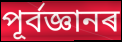
পূৰ্বজ্ঞানৰ